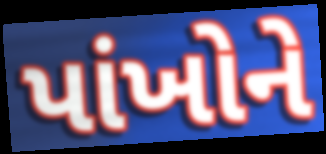
પાંખોને